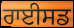
ਰਾਈਸਡ